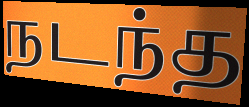
நடந்த